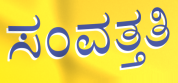
ಸಂವತ್ತತಿ